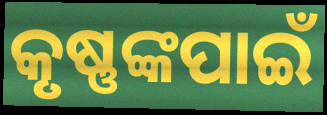
କୃଷ୍ଣଙ୍କପାଇଁ